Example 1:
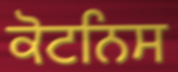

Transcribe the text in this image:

ਕੋਟਨਿਸ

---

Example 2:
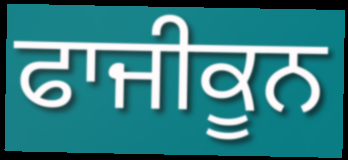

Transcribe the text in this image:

ਫਾਜੀਕੂਨ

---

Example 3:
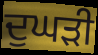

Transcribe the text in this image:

ਦੁਘੜੀ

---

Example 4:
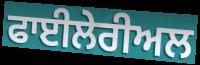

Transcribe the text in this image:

ਫਾਈਲੇਰੀਅਲ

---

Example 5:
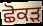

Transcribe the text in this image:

ਛੋਕੜ